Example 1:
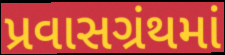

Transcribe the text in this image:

પ્રવાસગ્રંથમાં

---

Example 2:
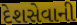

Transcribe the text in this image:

દેશસેવાની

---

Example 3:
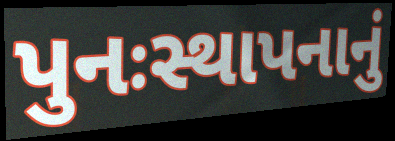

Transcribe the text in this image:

પુનઃસ્થાપનાનું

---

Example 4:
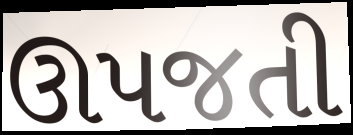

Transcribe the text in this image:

ઊપજતી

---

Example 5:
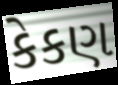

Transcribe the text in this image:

કેકણ